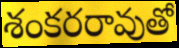
శంకరరావుతో